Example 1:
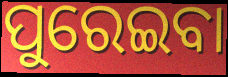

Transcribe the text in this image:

ପୁରେଇବା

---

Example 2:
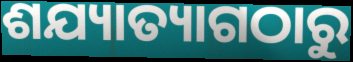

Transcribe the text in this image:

ଶଯ୍ୟାତ୍ୟାଗଠାରୁ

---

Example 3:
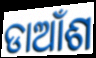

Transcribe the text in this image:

ଡାଆଁଶ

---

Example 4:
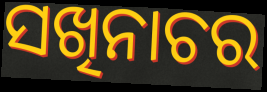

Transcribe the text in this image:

ସଖିନାଚର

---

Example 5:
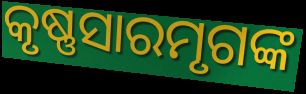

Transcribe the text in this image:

କୃଷ୍ଣସାରମୃଗଙ୍କ